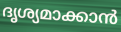
ദൃശ്യമാക്കാൻ